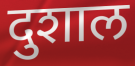
दुशाल